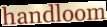
handloom